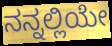
ನನ್ನಲ್ಲಿಯೇ